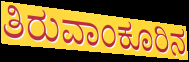
ತಿರುವಾಂಕೂರಿನ